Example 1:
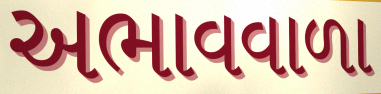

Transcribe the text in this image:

અભાવવાળા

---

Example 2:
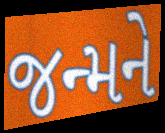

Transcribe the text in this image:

જન્મને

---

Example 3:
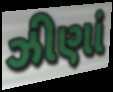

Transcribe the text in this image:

ઝીણાં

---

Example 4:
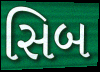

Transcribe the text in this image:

સિબ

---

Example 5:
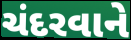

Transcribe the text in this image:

ચંદરવાને